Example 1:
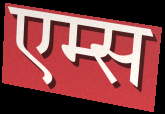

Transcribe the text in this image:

एम्स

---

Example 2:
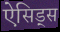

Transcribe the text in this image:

ऐसिड्स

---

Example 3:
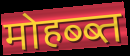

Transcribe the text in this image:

मोहब्ब्त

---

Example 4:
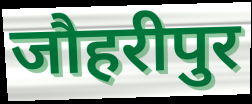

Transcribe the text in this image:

जौहरीपुर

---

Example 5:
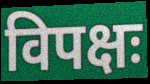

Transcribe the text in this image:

विपक्षः